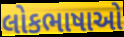
લોકભાષાઓ